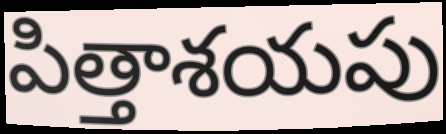
పిత్తాశయపు